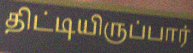
திட்டியிருப்பார்